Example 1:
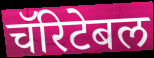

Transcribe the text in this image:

चॅरिटेबल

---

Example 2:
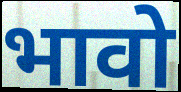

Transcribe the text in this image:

भावो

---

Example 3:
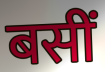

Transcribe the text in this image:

बसीं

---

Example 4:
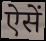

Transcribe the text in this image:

ऐसें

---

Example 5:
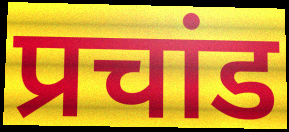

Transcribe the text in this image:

प्रचांड